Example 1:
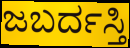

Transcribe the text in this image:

ಜಬರ್ದಸ್ತಿ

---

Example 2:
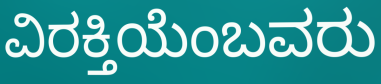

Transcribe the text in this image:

ವಿರಕ್ತಿಯೆಂಬವರು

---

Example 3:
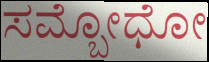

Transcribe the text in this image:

ಸಮ್ಬೋಧೋ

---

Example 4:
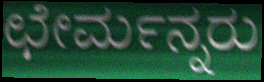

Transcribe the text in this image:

ಛೇರ್ಮನ್ನರು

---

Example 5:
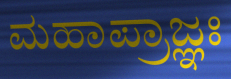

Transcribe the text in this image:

ಮಹಾಪ್ರಾಜ್ಞಃ